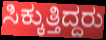
ಸಿಕ್ಕುತ್ತಿದ್ದರು